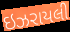
ઇઝરાયલી